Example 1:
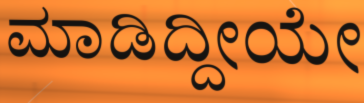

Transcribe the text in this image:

ಮಾಡಿದ್ದೀಯೇ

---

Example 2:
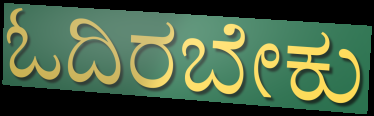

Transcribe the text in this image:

ಓದಿರಬೇಕು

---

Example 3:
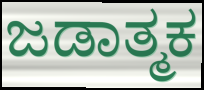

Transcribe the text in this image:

ಜಡಾತ್ಮಕ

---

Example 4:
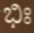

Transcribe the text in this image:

ಭಿಃ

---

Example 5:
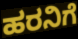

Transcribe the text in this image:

ಹರನಿಗೆ